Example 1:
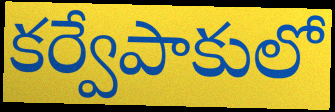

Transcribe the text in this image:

కర్వేపాకులో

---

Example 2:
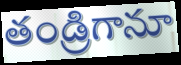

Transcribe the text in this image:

తండ్రిగానూ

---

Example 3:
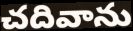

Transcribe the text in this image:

చదివాను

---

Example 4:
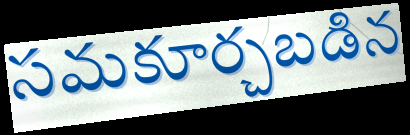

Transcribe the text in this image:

సమకూర్చబడిన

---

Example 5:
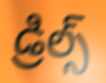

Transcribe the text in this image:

డ్రిల్స్